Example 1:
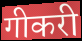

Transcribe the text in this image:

गीकरी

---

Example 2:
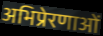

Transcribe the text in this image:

अभिप्रेरणाओं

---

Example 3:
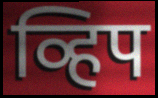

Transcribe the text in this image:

व्हिप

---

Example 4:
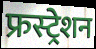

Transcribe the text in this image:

फ्रस्‍ट्रेशन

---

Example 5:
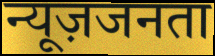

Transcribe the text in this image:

न्यूज़जनता